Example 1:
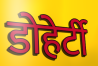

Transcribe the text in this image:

डोहेर्टी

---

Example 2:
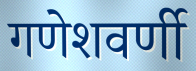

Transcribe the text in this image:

गणेशवर्णी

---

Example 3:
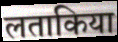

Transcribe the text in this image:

लताकिया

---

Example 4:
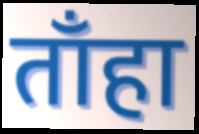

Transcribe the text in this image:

ताँहा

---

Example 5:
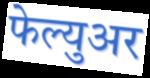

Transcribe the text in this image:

फेल्युअर